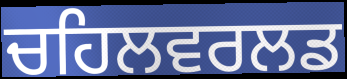
ਚਹਿਲਵਰਲਡ